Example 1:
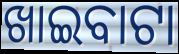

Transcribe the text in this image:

ଖାଇବାଟା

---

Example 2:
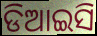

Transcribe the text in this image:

ଡିଆଇସି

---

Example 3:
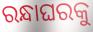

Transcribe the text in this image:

ରନ୍ଧାଘରକୁ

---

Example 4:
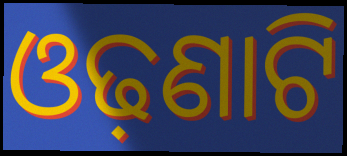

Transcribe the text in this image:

ଓଢ଼ଣାଟି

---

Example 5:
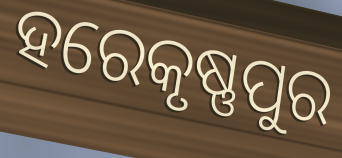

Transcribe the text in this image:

ହରେକୃଷ୍ଣପୁର